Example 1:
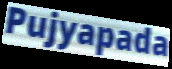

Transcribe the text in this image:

Pujyapada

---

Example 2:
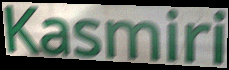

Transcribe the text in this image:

Kasmiri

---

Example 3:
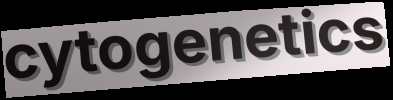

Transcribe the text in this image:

cytogenetics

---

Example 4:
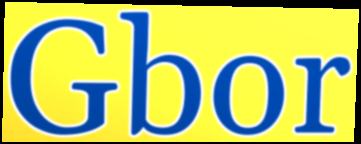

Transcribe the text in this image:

Gbor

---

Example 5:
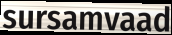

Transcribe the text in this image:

sursamvaad